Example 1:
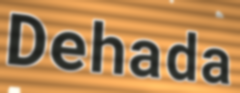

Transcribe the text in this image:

Dehada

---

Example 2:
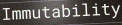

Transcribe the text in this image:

Immutability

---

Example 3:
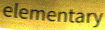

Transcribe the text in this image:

elementary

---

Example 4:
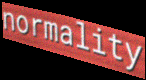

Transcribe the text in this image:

normality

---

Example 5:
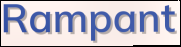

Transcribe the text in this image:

Rampant